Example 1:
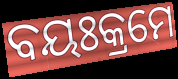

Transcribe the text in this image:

ବୟଃକ୍ରମେ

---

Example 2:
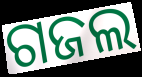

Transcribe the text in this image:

ଗଜଲ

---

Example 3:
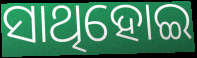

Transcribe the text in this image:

ସାଥିହୋଇ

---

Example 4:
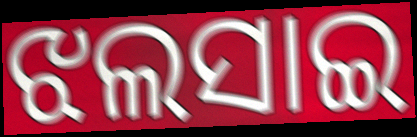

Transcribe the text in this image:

ଝଲସାଇ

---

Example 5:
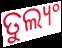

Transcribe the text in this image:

ତୁଲ୍ୟଂ